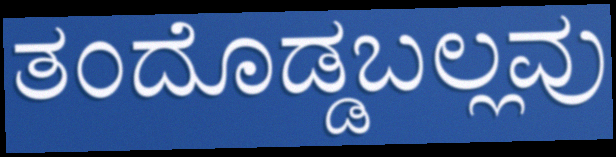
ತಂದೊಡ್ಡಬಲ್ಲವು